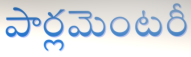
పార్లమెంటరీ